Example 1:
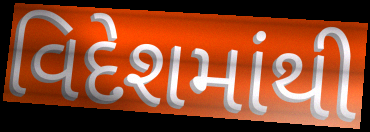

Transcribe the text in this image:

વિદેશમાંથી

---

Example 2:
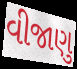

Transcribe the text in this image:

વીજાણુ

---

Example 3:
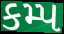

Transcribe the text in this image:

કમ્પ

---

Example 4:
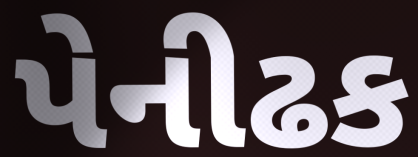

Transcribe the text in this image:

પેનીઢક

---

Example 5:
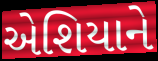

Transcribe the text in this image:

એશિયાને